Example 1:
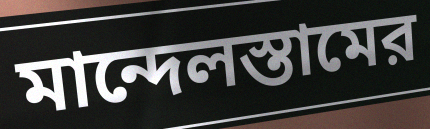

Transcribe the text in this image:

মান্দেলস্তামের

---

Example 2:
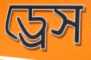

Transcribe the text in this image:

ড্রেস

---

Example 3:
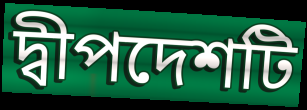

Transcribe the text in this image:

দ্বীপদেশটি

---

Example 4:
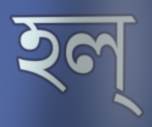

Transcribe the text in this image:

হল্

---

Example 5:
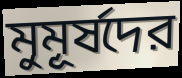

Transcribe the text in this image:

মুমূর্ষদের